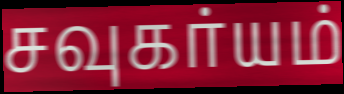
சவுகர்யம்